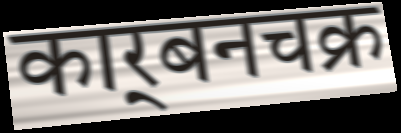
कार्बनचक्र